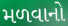
મળવાનો